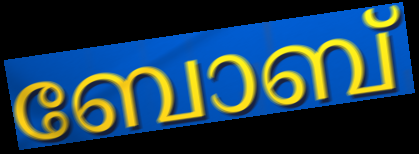
ബോബ്